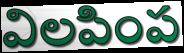
విలపింప